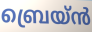
ബ്രെയ്ൻ